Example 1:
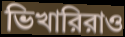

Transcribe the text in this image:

ভিখারিরাও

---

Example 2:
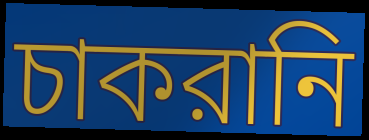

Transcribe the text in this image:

চাকরানি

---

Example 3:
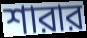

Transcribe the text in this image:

শারার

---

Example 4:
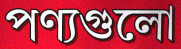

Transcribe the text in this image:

পণ্যগুলো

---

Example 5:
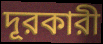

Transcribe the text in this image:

দূরকারী